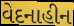
વેદનાહીન